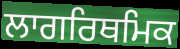
ਲਾਗਰਿਥਮਿਕ